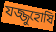
যজ্জুহোষি